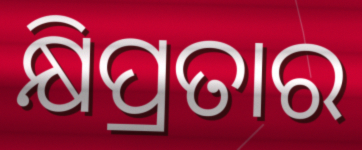
କ୍ଷିପ୍ରତାର